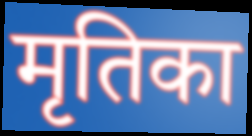
मृतिका